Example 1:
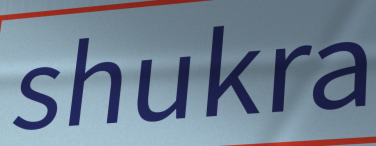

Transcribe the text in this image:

shukra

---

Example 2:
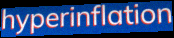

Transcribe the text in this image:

hyperinflation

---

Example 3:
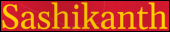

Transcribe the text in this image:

Sashikanth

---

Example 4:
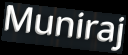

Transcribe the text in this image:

Muniraj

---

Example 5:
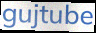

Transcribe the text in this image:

gujtube